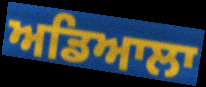
ਅਡਿਆਲਾ